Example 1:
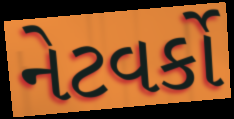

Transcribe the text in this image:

નેટવર્કો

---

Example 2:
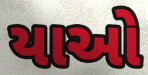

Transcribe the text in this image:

યાઓ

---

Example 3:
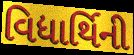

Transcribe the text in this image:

વિદ્યાર્થિની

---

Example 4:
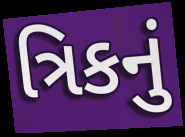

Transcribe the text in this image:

ત્રિકનું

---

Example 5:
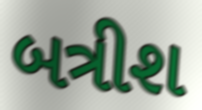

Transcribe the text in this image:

બત્રીશ